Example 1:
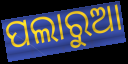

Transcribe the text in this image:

ପଲାରୁଆ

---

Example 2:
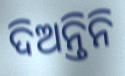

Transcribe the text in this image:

ଦିଅନ୍ତିନି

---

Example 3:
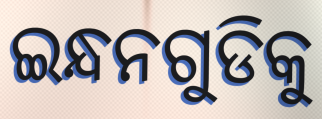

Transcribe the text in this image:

ଇନ୍ଧନଗୁଡିକୁ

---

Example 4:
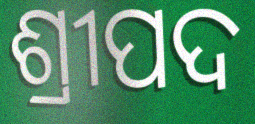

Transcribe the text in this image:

ଶ୍ରୀପଦ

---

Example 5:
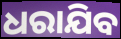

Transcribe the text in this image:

ଧରାଯିବ